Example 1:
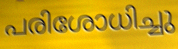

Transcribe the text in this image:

പരിശോധിച്ചു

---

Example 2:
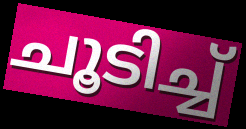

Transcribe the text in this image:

ചൂടിച്ച്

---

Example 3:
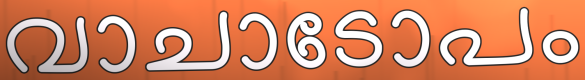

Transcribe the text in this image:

വാചാടോപം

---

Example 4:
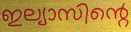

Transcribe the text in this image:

ഇല്യാസിന്റെ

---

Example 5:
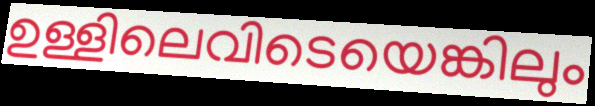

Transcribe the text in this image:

ഉള്ളിലെവിടെയെങ്കിലും